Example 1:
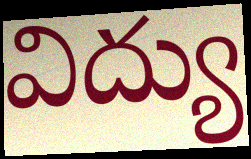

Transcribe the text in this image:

విద్యు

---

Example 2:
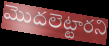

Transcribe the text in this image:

మొదలెట్టారని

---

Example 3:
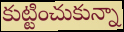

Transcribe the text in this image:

కుట్టించుకున్నా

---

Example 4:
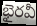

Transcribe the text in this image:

భైరవీ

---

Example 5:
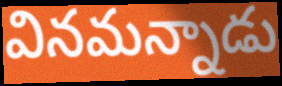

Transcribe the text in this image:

వినమన్నాడు